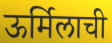
ऊर्मिलाची